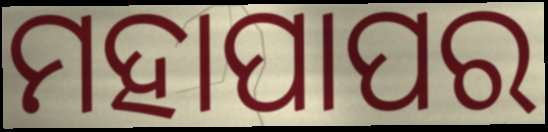
ମହାପାପର